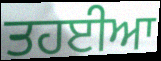
ਤਹਈਆ